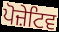
ਪੋਜ਼ੇਟਿਵ